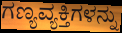
ಗಣ್ಯವ್ಯಕ್ತಿಗಳನ್ನು